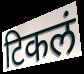
टिकलं